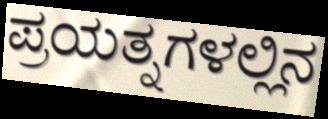
ಪ್ರಯತ್ನಗಳಲ್ಲಿನ